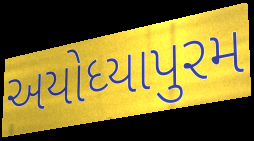
અયોધ્યાપુરમ